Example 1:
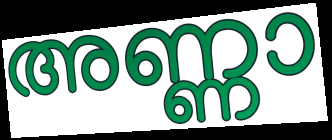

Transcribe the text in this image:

അണ്ണാ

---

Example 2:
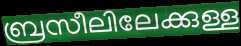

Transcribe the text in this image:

ബ്രസീലിലേക്കുള്ള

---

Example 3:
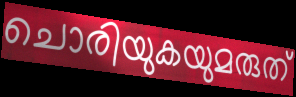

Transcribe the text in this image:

ചൊരിയുകയുമരുത്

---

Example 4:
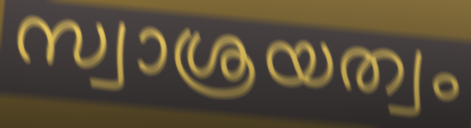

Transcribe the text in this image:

സ്വാശ്രയത്വം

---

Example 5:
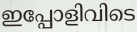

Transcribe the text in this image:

ഇപ്പോളിവിടെ